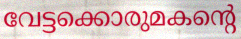
വേട്ടക്കൊരുമകന്റെ